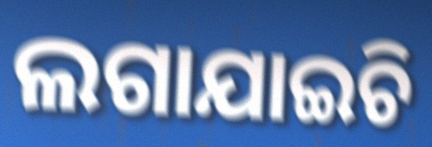
ଲଗାଯାଇଚି